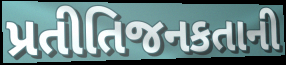
પ્રતીતિજનકતાની